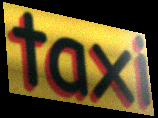
taxi